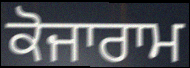
ਕੋਜਾਰਾਮ